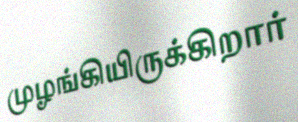
முழங்கியிருக்கிறார்